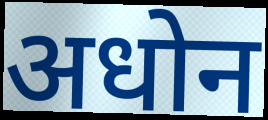
अधोन